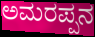
ಅಮರಪ್ಪನ